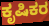
ಕೃಷಿಕರ